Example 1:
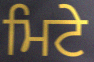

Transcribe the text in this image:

ਮਿਟੇ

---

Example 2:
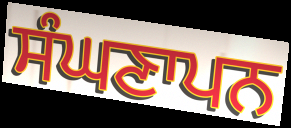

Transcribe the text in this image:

ਸੰਘਣਾਪਨ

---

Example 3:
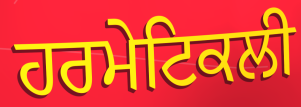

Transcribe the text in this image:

ਹਰਮੇਟਿਕਲੀ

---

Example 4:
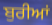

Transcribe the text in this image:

ਬੁਰੀਆਂ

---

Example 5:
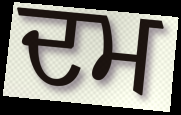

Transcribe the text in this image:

ਦਮ